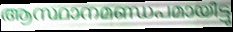
ആസ്ഥാനമണ്ഡപമായിട്ടു